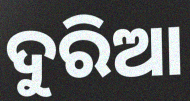
ଦୁରିଆ